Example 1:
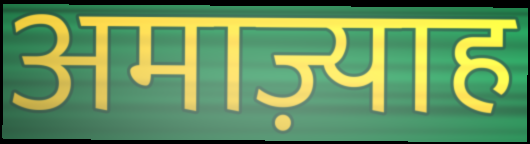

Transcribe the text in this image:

अमाज़्याह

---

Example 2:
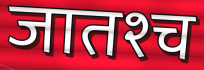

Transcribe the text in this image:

जातश्च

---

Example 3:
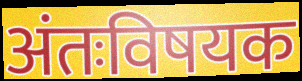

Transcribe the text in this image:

अंतःविषयक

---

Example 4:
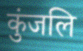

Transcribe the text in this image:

कुंजलि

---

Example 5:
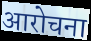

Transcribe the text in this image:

आरोचना